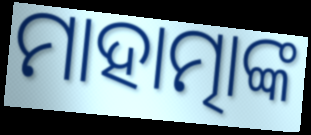
ମାହାତ୍ମାଙ୍କ